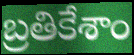
బ్రతికేశాం